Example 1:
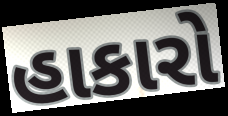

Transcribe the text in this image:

હાકારો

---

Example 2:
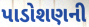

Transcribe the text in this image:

પાડોશણની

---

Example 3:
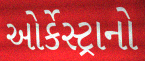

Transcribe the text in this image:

ઓર્કેસ્ટ્રાનો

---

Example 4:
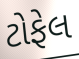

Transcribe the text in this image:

ટોફેલ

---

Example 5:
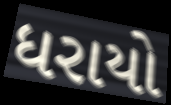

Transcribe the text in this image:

ધરાયો